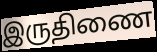
இருதிணை